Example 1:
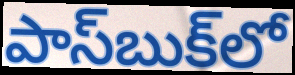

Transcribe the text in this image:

పాస్‌బుక్‌లో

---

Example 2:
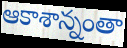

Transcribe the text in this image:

ఆకాశాన్నంతా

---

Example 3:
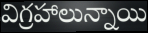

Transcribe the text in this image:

విగ్రహాలున్నాయి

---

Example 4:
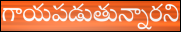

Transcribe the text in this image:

గాయపడుతున్నారని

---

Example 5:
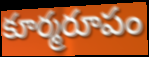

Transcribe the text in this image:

కూర్మరూపం